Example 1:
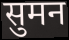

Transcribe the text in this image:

सुमन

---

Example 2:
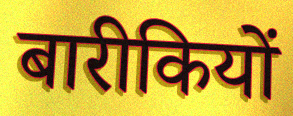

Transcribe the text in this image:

बारीकियों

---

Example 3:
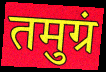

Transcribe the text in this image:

तमुग्रं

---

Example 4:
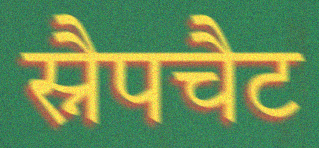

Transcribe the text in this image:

स्नैपचैट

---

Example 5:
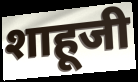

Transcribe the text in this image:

शाहूजी